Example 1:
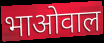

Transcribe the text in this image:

भाओवाल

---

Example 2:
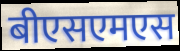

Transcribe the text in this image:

बीएसएमएस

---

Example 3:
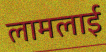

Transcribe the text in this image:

लामलाई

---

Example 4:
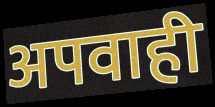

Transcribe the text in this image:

अपवाही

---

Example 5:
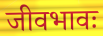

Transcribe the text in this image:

जीवभावः